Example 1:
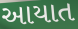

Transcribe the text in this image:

આયાત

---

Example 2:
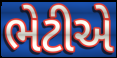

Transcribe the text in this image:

ભેટીએ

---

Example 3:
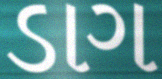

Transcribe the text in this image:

ડાગ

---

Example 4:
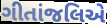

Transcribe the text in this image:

ગીતાંજલિએ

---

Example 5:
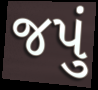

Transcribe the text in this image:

જપું